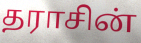
தராசின்